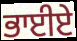
ਭਾਈਏ